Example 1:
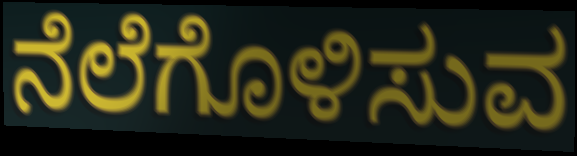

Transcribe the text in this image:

ನೆಲೆಗೊಳಿಸುವ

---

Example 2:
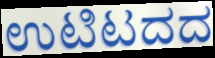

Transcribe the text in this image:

ಉಟಿಟದದ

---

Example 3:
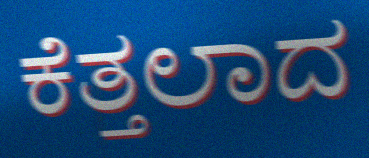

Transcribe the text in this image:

ಕೆತ್ತಲಾದ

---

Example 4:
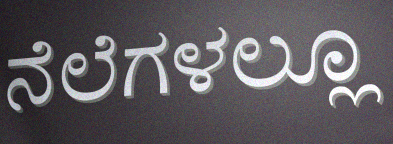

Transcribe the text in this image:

ನೆಲೆಗಳಲ್ಲೂ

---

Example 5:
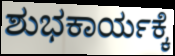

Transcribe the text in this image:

ಶುಭಕಾರ್ಯಕ್ಕೆ